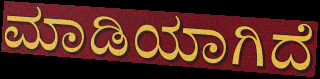
ಮಾಡಿಯಾಗಿದೆ